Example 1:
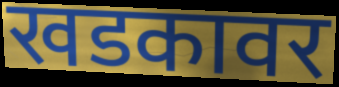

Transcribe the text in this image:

खडकावर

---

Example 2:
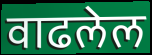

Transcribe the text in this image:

वाढलेल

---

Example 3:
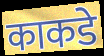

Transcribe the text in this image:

काकडे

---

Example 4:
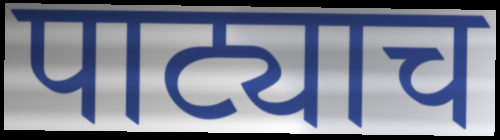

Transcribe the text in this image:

पाट्याच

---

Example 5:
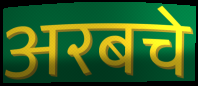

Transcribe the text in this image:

अरबचे